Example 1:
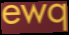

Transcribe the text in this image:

ewq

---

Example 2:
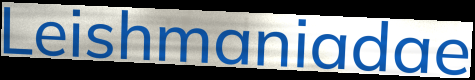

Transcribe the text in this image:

Leishmaniadae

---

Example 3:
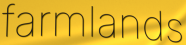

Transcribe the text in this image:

farmlands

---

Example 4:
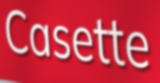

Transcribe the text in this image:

Casette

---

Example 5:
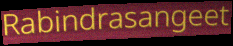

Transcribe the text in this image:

Rabindrasangeet